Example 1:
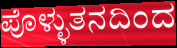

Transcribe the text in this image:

ಪೊಳ್ಳುತನದಿಂದ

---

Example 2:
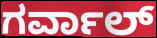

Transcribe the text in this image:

ಗರ್ವಾಲ್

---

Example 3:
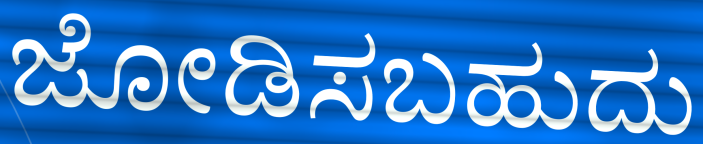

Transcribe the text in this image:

ಜೋಡಿಸಬಹುದು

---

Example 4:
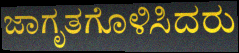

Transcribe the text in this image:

ಜಾಗೃತಗೊಳಿಸಿದರು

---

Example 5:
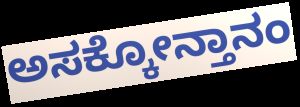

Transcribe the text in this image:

ಅಸಕ್ಕೋನ್ತಾನಂ